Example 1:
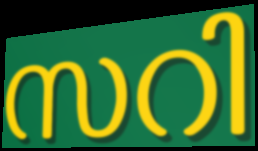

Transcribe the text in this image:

സറി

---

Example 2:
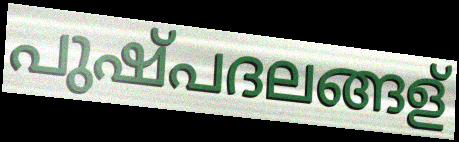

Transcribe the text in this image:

പുഷ്പദലങ്ങള്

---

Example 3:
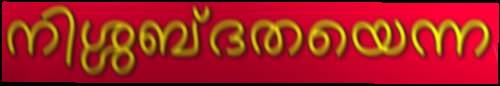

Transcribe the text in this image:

നിശ്ശബ്ദതയെന്ന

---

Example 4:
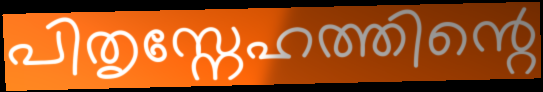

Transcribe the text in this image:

പിതൃസ്നേഹത്തിന്റെ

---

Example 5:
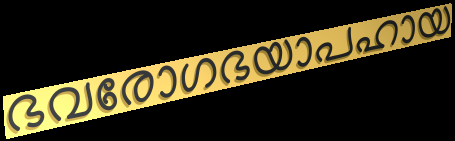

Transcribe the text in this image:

ഭവരോഗഭയാപഹായ